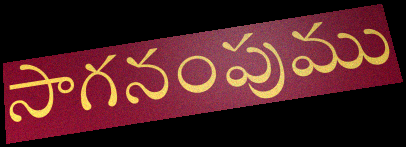
సాగనంపుము